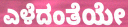
ಎಳೆದಂತೆಯೇ